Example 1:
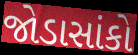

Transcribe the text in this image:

જોડાસાંકો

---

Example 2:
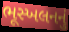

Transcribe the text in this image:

ભૂસ્ખલનનું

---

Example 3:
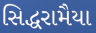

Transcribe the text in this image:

સિદ્ધરામૈયા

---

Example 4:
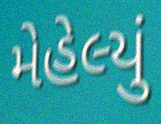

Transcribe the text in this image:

મેહેલ્યું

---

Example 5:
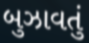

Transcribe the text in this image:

બુઝાવતું